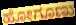
ಹೋಗೂಣು